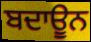
ਬਦਾਊਨ